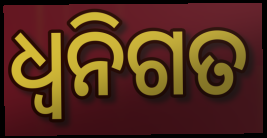
ଧ୍ୱନିଗତ